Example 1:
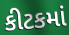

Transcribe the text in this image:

કીટકમાં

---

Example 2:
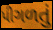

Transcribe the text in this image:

પીગળતું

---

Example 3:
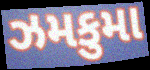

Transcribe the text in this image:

ઝમકુમા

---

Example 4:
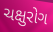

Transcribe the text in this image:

ચક્ષુરોગ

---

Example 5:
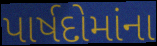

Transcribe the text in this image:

પાર્ષદોમાંના